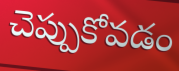
చెప్పుకోవడం